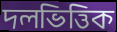
দলভিত্তিক